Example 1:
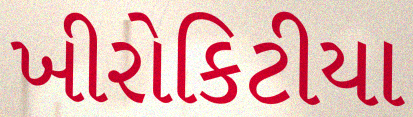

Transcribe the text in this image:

ખીરોકિટીયા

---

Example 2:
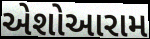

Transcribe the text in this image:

એશોઆરામ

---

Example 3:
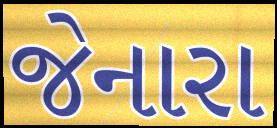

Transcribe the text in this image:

જેનારા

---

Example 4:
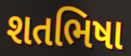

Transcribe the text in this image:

શતભિષા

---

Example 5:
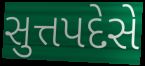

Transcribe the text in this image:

સુત્તપદેસે